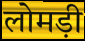
लोमड़ी